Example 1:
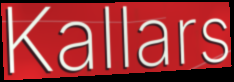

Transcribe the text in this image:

Kallars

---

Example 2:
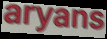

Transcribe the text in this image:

aryans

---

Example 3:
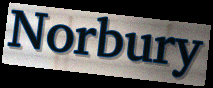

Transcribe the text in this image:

Norbury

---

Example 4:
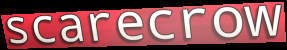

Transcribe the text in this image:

scarecrow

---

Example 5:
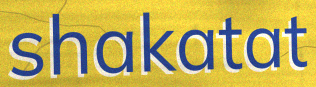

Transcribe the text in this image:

shakatat